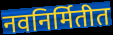
नवनिर्मितीत